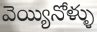
వెయ్యినోళ్ళు